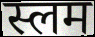
स्लम